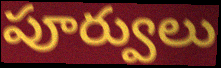
పూర్వులు